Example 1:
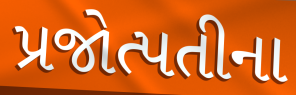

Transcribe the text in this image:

પ્રજોત્પતીના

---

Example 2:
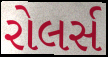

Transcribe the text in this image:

રોલર્સ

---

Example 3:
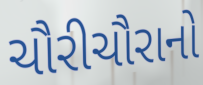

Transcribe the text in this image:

ચૌરીચૌરાનો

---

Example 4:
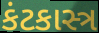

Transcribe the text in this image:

કંટકાસ્ત્ર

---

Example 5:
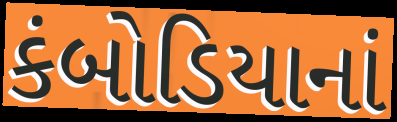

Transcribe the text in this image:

કંબોડિયાનાં